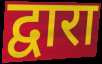
द्वारा